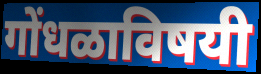
गोंधळाविषयी